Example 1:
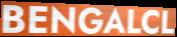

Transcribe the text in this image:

BENGALCL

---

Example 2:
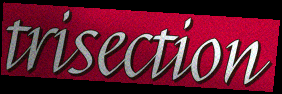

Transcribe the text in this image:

trisection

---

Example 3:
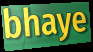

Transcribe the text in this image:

bhaye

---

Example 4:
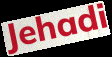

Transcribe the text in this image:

Jehadi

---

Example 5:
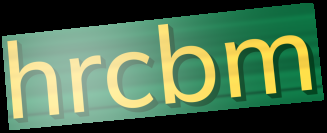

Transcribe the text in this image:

hrcbm